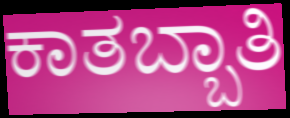
ಕಾತಬ್ಬಾತಿ